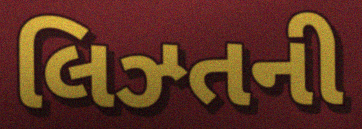
લિઝ્તની